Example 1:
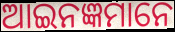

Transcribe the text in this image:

ଆଇନଜ୍ଞମାନେ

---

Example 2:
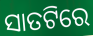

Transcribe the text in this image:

ସାତଟିରେ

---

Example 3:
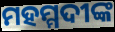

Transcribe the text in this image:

ମହମ୍ମଦୀଙ୍କ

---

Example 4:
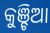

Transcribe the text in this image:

କୁଞ୍ଚିଆ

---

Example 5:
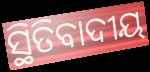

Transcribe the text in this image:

ସ୍ଥିତିବାଦୀୟ